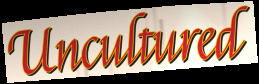
Uncultured